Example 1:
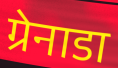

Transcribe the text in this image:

ग्रेनाडा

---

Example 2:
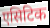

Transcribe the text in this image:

एसिटिक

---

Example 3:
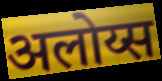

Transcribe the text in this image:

अलोय्स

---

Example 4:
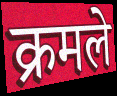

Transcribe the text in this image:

क्रमले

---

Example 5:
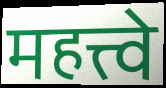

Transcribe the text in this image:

महत्त्वे